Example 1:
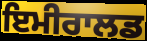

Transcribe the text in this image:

ਇਮੀਰਾਲਡ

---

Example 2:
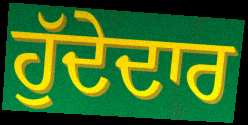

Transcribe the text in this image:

ਹੁੱਦੇਦਾਰ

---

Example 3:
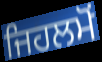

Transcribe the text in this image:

ਜਿਹਲਮੋਂ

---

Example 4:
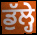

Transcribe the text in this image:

ਡੁੱਲ੍ਹੇ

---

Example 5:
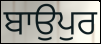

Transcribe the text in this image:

ਬਾਉਪੁਰ